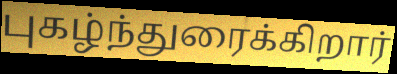
புகழ்ந்துரைக்கிறார்